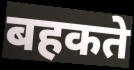
बहकते